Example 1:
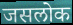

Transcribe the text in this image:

जसलोक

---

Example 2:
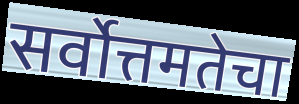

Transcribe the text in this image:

सर्वोत्तमतेचा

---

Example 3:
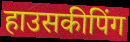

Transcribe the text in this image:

हाउसकीपिंग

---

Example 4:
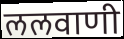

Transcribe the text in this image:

ललवाणी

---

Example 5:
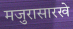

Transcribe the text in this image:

मजुरासारखे